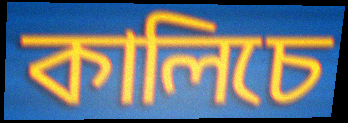
কালিচে